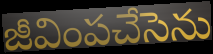
జీవింపచేసెను